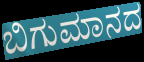
ಬಿಗುಮಾನದ